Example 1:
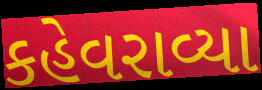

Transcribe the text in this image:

કહેવરાવ્યા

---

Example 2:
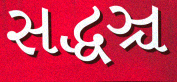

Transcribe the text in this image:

સદ્ધઞ્ચ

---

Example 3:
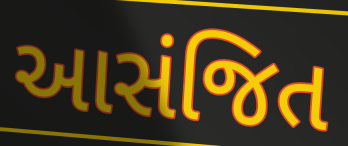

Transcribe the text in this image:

આસંજિત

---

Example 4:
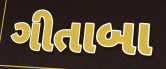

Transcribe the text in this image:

ગીતાબા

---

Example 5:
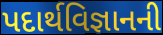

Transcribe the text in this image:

પદાર્થવિજ્ઞાનની